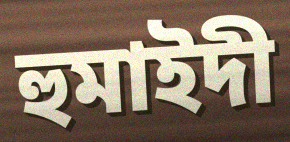
হুমাইদী